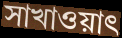
সাখাওয়াৎ